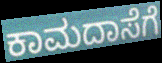
ಕಾಮದಾಸೆಗೆ